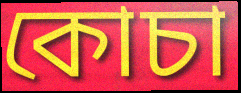
কোচা